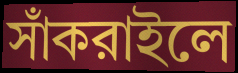
সাঁকরাইলে